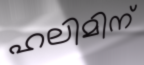
ഹലിമിന്